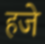
हजे